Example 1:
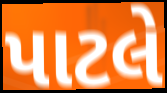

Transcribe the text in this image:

પાટલે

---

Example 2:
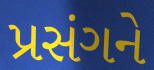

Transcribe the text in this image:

પ્રસંગને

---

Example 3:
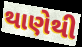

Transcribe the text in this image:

થાણેથી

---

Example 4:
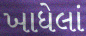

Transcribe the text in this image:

ખાધેલાં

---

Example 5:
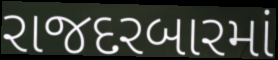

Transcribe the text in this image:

રાજદરબારમાં